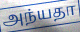
அந்யதா